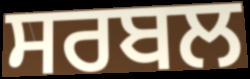
ਸਰਬਲ